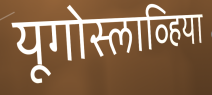
यूगोस्लाव्हिया